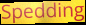
Spedding